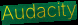
Audacity